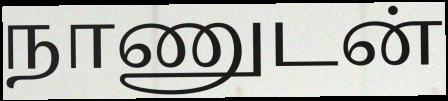
நாணுடன்